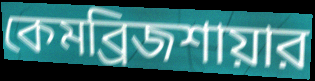
কেমব্রিজশায়ার